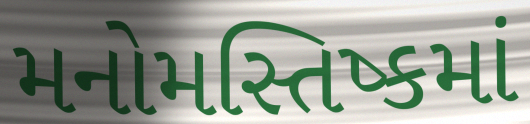
મનોમસ્તિષ્કમાં